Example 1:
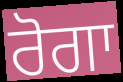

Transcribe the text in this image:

ਰੋਗਾ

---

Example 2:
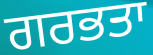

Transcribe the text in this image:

ਗਰਭਤਾ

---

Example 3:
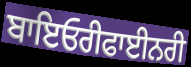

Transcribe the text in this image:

ਬਾਇਓਰੀਫਾਈਨਰੀ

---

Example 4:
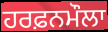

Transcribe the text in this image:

ਹਰਫ਼ਨਮੌਲਾ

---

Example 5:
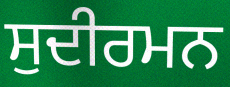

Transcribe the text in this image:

ਸੁਦੀਰਮਨ